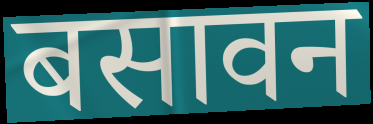
बसावन